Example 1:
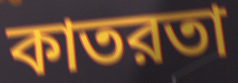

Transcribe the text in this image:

কাতরতা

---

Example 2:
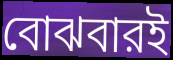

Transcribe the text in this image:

বোঝবারই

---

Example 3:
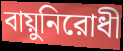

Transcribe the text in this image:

বায়ুনিরোধী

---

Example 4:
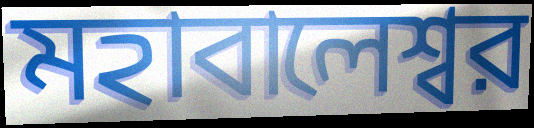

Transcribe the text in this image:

মহাবালেশ্বর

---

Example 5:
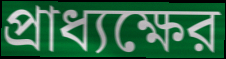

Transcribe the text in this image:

প্রাধ্যক্ষের